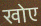
खोए